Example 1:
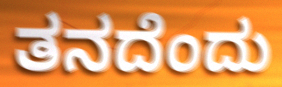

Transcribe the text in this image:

ತನದೆಂದು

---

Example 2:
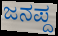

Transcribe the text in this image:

ಜನಪ್ದ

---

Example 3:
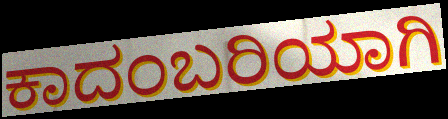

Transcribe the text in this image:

ಕಾದಂಬರಿಯಾಗಿ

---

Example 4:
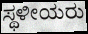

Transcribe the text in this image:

ಸ್ಥಳೀಯರು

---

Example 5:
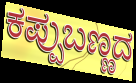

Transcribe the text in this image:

ಕಪ್ಪುಬಣ್ಣದ